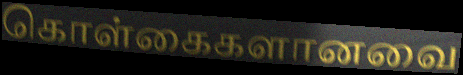
கொள்கைகளானவை